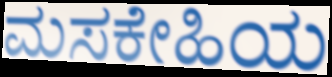
ಮಸಕೇಹಿಯ